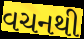
વચનથી